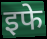
इफे